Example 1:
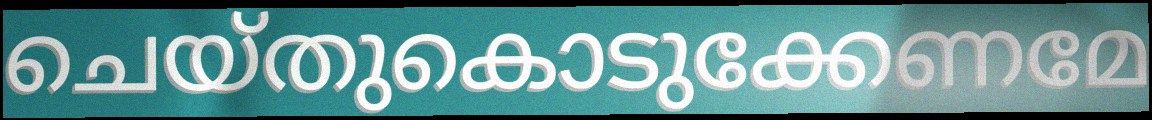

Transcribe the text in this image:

ചെയ്തുകൊടുക്കേണമേ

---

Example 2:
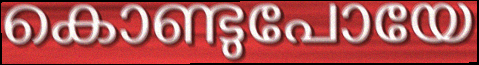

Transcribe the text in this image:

കൊണ്ടുപോയേ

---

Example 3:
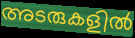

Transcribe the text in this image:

അടരുകളിൽ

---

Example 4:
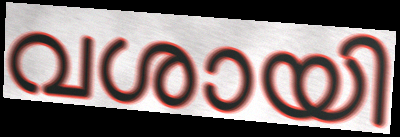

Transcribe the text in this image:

വശായി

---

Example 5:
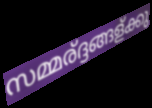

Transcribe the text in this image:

സമ്മര്ദ്ദങ്ങള്ക്കു